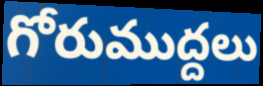
గోరుముద్దలు